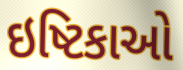
ઇષ્ટિકાઓ